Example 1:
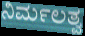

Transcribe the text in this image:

ನಿರ್ಮಲತ್ವ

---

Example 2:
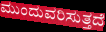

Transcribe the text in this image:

ಮುಂದುವರಿಸುತ್ತದೆ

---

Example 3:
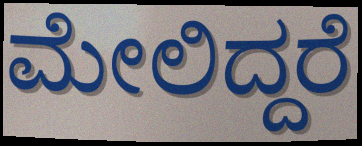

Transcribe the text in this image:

ಮೇಲಿದ್ದರೆ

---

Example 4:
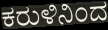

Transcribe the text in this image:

ಕರುಳಿನಿಂದ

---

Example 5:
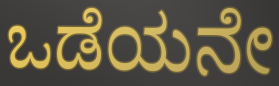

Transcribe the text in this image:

ಒಡೆಯನೇ